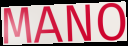
MANO